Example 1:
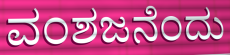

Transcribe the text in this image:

ವಂಶಜನೆಂದು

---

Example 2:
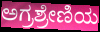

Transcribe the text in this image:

ಅಗ್ರಶ್ರೇಣಿಯ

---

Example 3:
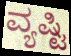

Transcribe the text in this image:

ವ್ಯಷ್ಟಿ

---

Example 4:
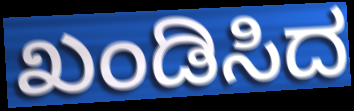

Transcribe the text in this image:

ಖಂಡಿಸಿದ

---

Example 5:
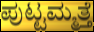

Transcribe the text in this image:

ಪುಟ್ಟಮ್ಮತ್ತೆ